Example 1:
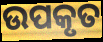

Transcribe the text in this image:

ଉପକୃତ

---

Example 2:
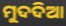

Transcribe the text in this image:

ମୁଦଦିଆ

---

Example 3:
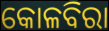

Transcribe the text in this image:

କୋଳବିରା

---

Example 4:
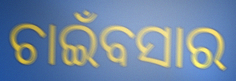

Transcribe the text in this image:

ଚାଇଁବସାର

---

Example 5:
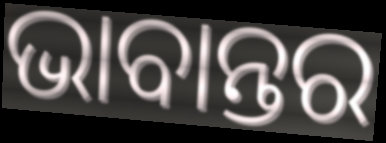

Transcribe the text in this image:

ଭାବାନ୍ତର